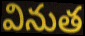
వినుత